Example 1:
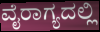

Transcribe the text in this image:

ವೈರಾಗ್ಯದಲ್ಲಿ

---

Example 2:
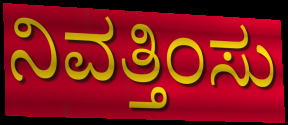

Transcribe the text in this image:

ನಿವತ್ತಿಂಸು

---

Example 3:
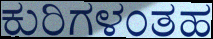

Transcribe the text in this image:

ಕುರಿಗಳಂತಹ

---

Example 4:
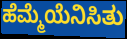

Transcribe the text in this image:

ಹೆಮ್ಮೆಯೆನಿಸಿತು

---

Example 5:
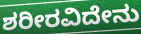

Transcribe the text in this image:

ಶರೀರವಿದೇನು